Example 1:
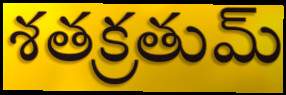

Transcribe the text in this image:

శతక్రతుమ్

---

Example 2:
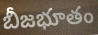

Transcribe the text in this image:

బీజభూతం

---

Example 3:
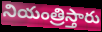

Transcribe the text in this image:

నియంత్రిస్తారు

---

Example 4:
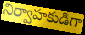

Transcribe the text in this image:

నిర్వాహకుడిగా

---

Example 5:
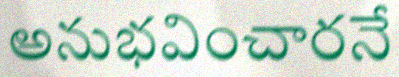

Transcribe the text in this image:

అనుభవించారనే